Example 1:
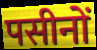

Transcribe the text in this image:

पसीनों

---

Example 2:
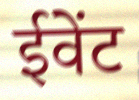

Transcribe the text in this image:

ईवेंट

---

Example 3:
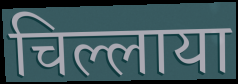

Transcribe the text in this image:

चिल्लाया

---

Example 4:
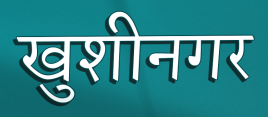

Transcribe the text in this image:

खुशीनगर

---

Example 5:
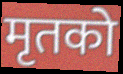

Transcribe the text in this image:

मृतको